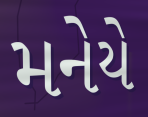
મનેયે